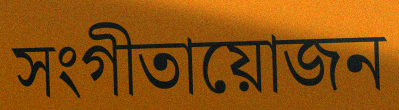
সংগীতায়োজন